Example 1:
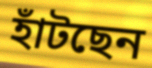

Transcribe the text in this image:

হাঁটছেন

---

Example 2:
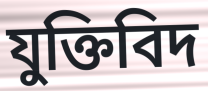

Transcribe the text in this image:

যুক্তিবিদ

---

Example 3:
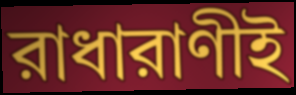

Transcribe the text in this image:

রাধারাণীই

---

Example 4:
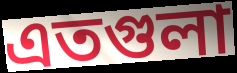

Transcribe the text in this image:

এতগুলা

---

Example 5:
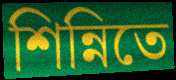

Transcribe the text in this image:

শিন্নিতে